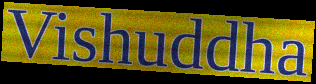
Vishuddha